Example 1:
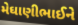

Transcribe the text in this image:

મેઘાણીભાઈને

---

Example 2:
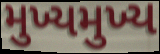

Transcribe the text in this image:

મુખ્યમુખ્ય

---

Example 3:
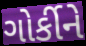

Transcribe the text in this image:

ગોર્કીને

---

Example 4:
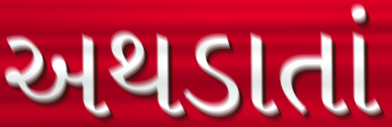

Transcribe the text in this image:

અથડાતાં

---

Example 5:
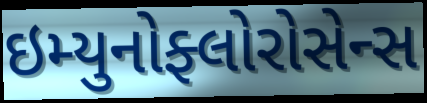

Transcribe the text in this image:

ઇમ્યુનોફ્લોરોસેન્સ